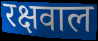
रक्षवाल